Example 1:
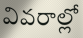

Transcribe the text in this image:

వివరాల్లో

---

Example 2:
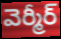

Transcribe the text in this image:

వెర్మీర్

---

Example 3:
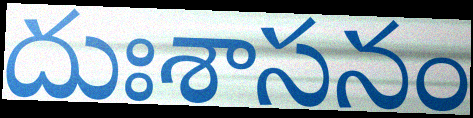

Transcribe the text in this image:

దుఃశాసనం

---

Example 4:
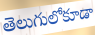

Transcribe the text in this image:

తెలుగులోకూడా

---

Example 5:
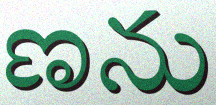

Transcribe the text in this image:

ణను